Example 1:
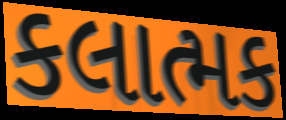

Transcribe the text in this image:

કલાત્મક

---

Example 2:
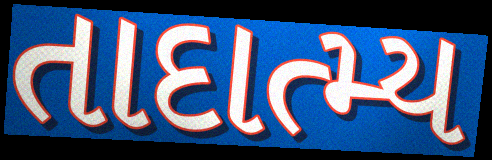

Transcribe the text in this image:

તાદાત્મ્ય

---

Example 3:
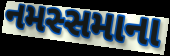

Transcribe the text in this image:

નમસ્સમાના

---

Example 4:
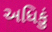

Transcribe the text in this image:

અધિકું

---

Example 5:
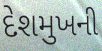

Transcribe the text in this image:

દેશમુખની